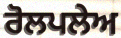
ਰੋਲਪਲੇਅ